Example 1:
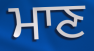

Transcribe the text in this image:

ਮਾਣ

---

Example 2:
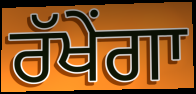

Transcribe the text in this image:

ਰੱਖੇਂਗਾ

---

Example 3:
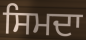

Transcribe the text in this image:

ਸਿਮਦਾ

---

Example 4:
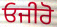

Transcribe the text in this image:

ਓਜੀਰੋ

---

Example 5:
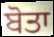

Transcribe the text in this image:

ਬੋਤਾ